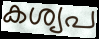
കശ്യപ